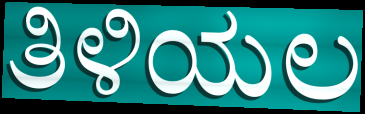
ತಿಳಿಯಲ